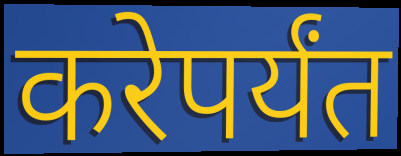
करेपर्यंत